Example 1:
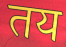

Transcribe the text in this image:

तय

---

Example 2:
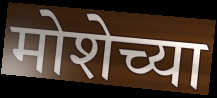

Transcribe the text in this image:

मोशेच्या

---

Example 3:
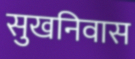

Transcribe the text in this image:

सुखनिवास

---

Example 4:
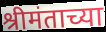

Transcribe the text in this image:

श्रीमंताच्या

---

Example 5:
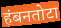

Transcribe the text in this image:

हंबनतोटा